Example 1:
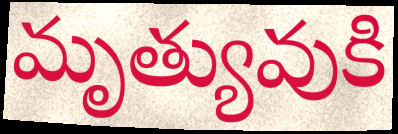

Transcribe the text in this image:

మృత్యువుకి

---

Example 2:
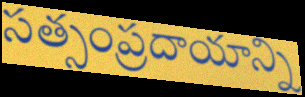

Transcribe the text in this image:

సత్సంప్రదాయాన్ని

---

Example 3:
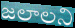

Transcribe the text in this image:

జలాలని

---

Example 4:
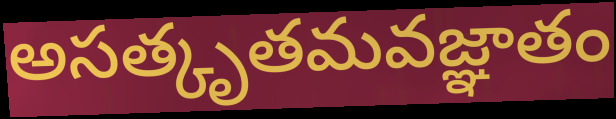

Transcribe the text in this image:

అసత్కృతమవజ్ఞాతం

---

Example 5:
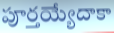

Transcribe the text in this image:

పూర్తయ్యేదాకా